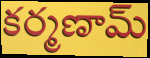
కర్మణామ్